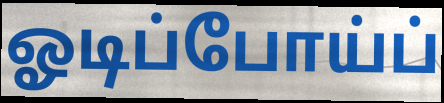
ஓடிப்போய்ப்